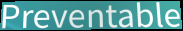
Preventable